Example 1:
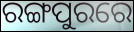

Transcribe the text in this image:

ରଙ୍ଗପୁରରେ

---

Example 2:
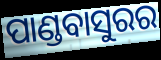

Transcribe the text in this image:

ପାଣ୍ଡବାସୁରର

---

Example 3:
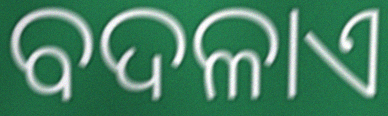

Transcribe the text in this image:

ବଦଳାଏ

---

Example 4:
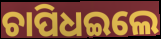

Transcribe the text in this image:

ଚାପିଧଇଲେ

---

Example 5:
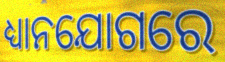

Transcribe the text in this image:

ଧ୍ୟାନଯୋଗରେ